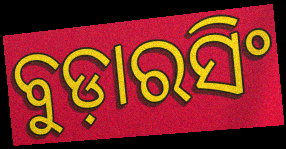
ବୁଡ଼ାରସିଂ